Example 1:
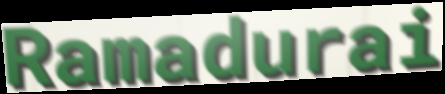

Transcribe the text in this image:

Ramadurai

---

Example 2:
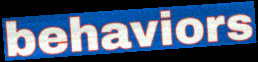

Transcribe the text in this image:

behaviors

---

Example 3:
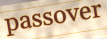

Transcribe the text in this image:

passover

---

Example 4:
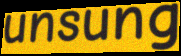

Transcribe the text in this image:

unsung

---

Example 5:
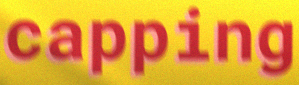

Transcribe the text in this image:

capping